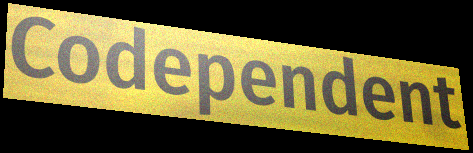
Codependent